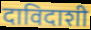
दाविदाशी